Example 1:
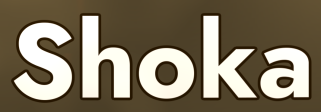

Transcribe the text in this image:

Shoka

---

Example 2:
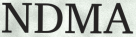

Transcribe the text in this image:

NDMA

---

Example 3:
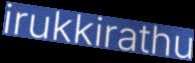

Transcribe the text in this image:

irukkirathu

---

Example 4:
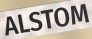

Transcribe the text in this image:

ALSTOM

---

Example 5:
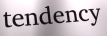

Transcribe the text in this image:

tendency